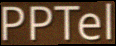
PPTel